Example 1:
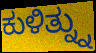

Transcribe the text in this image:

ಕುಳಿತ್ನ್ನು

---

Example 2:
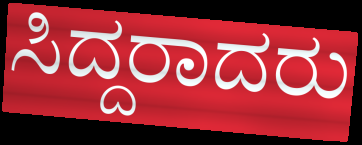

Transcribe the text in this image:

ಸಿದ್ದರಾದರು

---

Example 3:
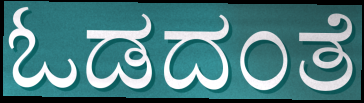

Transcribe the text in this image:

ಓಡದಂತೆ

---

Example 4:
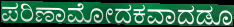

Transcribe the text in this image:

ಪರಿಣಾಮೋದಕವಾದಡೂ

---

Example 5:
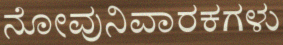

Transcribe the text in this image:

ನೋವುನಿವಾರಕಗಳು